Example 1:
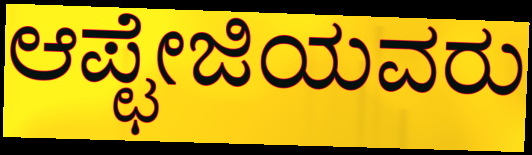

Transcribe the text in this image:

ಆಪ್ಟೇಜಿಯವರು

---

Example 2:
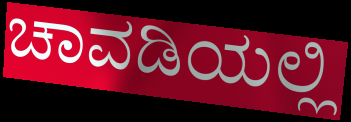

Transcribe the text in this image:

ಚಾವಡಿಯಲ್ಲಿ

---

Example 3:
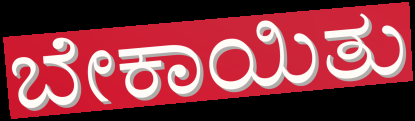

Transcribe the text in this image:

ಬೇಕಾಯಿತು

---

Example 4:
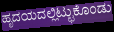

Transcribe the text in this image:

ಹೃದಯದಲ್ಲಿಟ್ಟುಕೊಂಡು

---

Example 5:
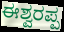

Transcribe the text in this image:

ಈಶ್ವರಪ್ಪ